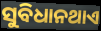
ସୁବିଧାନଥାଏ